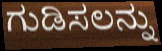
ಗುಡಿಸಲನ್ನು